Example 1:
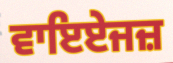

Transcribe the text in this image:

ਵਾਇਏਜਜ਼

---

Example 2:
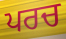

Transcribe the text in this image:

ਪਰਚ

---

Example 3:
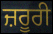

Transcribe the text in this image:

ਜ਼ਰੂਰੀ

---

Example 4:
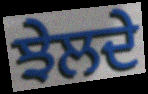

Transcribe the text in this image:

ਝੇਲਦੇ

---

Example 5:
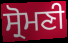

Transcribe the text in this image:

ਸ੍ਰੋਮਣੀ